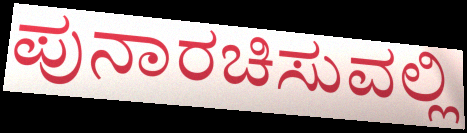
ಪುನಾರಚಿಸುವಲ್ಲಿ